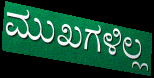
ಮುಖಗಳಿಲ್ಲ